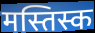
मस्तिस्क